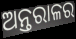
ଅନ୍ତରାଳର